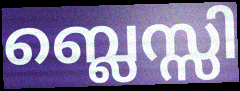
ബ്ലെസ്സി